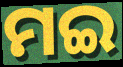
ମଇ